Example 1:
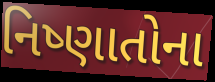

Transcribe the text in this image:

નિષ્ણાતોના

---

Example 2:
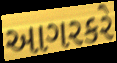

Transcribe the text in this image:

આગરકરે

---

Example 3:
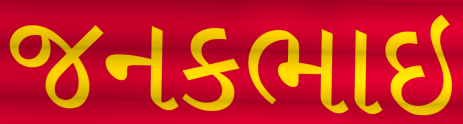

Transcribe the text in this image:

જનકભાઇ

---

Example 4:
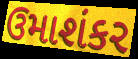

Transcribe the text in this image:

ઉમાશંકર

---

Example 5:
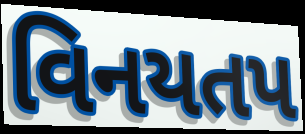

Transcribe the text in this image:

વિનયતપ